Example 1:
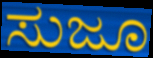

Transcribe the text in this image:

ಸುಜೂ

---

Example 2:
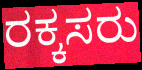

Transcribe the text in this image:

ರಕ್ಕಸರು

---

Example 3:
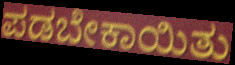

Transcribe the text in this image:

ಪಡಬೇಕಾಯಿತು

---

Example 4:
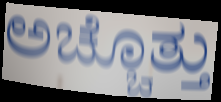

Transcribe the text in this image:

ಅಚ್ಚೊತ್ತು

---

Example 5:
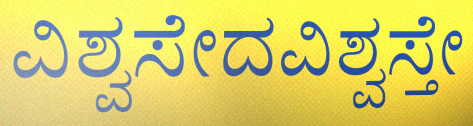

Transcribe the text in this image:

ವಿಶ್ವಸೇದವಿಶ್ವಸ್ತೇ